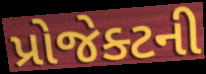
પ્રોજેક્ટની